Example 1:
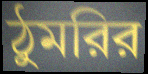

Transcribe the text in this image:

ঠুমরির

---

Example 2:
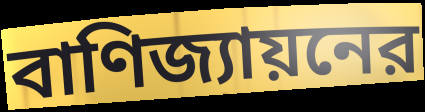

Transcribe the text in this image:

বাণিজ্যায়নের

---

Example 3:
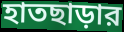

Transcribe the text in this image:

হাতছাড়ার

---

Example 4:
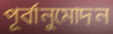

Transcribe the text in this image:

পূর্বানুমোদন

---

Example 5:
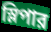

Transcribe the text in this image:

স্লিপার